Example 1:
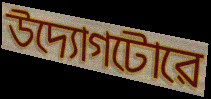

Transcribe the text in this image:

উদ্যোগটোৱে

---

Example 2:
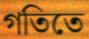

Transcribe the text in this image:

গতিতে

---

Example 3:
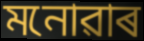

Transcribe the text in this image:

মনোৱাৰ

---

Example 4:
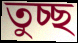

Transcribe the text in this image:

তুচ্ছ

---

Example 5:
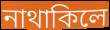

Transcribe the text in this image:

নাথাকিলে